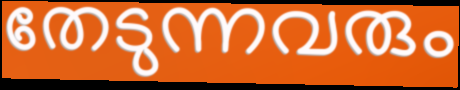
തേടുന്നവരും